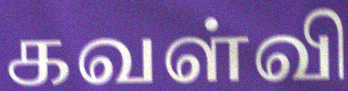
கவள்வி